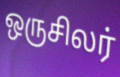
ஒருசிலர்